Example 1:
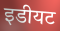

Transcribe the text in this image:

इडीयट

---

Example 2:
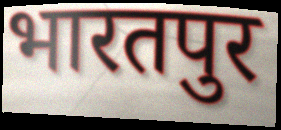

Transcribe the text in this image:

भारतपुर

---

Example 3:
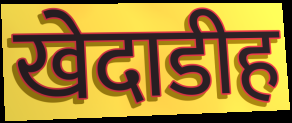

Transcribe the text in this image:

खेदाडीह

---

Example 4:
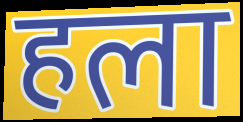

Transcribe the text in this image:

हला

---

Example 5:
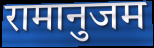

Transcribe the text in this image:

रामानुजम